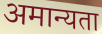
अमान्यता